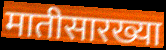
मातीसारख्या